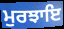
ਮੁਰਝਾਇ